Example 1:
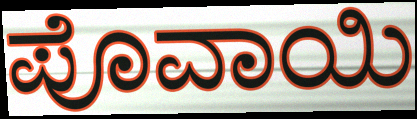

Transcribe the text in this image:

ಪೊವಾಯಿ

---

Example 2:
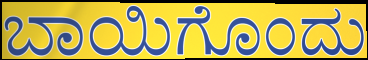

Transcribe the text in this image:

ಬಾಯಿಗೊಂದು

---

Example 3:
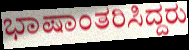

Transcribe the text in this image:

ಭಾಷಾಂತರಿಸಿದ್ದರು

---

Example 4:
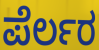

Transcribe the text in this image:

ಪೆರ್ಲರ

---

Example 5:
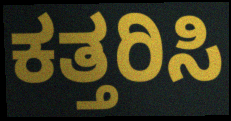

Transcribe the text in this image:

ಕತ್ತರಿಸಿ